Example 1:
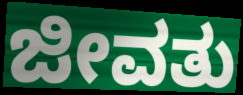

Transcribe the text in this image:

ಜೀವತು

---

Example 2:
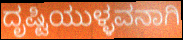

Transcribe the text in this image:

ದೃಷ್ಟಿಯುಳ್ಳವನಾಗಿ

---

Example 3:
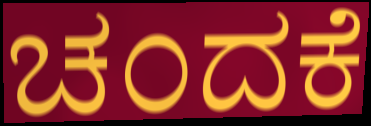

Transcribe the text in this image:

ಚಂದಕೆ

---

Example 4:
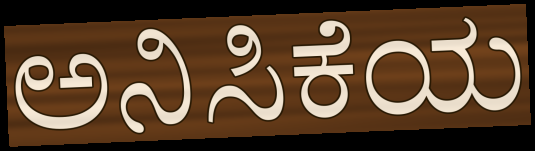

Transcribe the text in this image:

ಅನಿಸಿಕೆಯ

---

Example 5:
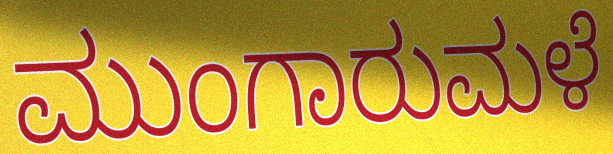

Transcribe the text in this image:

ಮುಂಗಾರುಮಳೆ